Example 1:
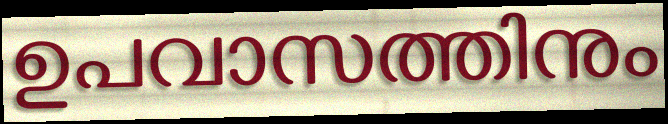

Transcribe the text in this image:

ഉപവാസത്തിനും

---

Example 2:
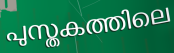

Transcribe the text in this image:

പുസ്തകത്തിലെ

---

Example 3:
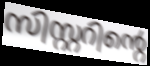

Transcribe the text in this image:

സിസ്റ്ററിന്റെ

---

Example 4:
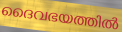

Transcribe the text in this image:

ദൈവഭയത്തിൽ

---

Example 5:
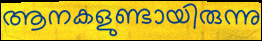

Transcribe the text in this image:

ആനകളുണ്ടായിരുന്നു